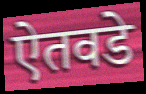
ऐतवडे